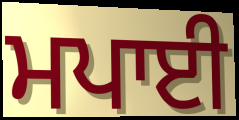
ਮਪਾਈ